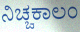
ನಿಚ್ಚಕಾಲಂ